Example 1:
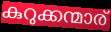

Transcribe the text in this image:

കുറുക്കന്മാര്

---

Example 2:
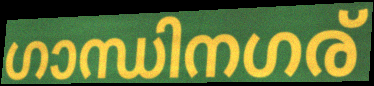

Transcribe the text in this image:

ഗാന്ധിനഗര്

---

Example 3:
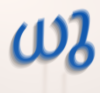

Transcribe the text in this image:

ധു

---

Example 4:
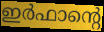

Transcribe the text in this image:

ഇർഫാന്റെ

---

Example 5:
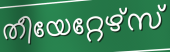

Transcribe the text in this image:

തീയേറ്റേഴ്സ്